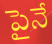
పైనే